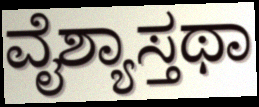
ವೈಶ್ಯಾಸ್ತಥಾ